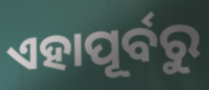
ଏହାପୂର୍ବରୁ